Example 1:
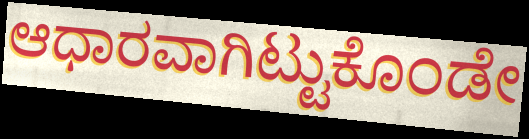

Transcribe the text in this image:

ಆಧಾರವಾಗಿಟ್ಟುಕೊಂಡೇ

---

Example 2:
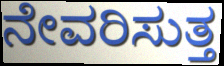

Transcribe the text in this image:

ನೇವರಿಸುತ್ತ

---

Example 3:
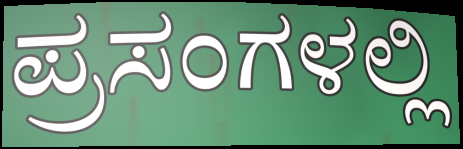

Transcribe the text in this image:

ಪ್ರಸಂಗಳಲ್ಲಿ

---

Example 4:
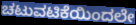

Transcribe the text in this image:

ಚಟುವಟಿಕೆಯಿಂದಲೇ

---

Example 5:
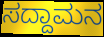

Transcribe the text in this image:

ಸದ್ದಾಮನ